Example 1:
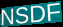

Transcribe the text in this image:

NSDF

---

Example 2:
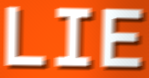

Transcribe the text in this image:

LIE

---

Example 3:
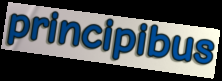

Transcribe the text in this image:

principibus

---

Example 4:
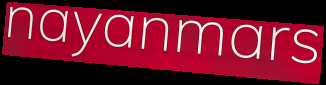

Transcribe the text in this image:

nayanmars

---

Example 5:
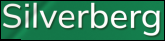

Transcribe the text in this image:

Silverberg